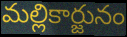
మల్లికార్జునం